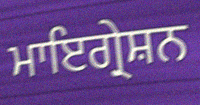
ਮਾਇਗ੍ਰੇਸ਼ਨ